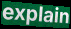
explain